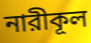
নারীকূল